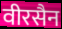
वीरसैन